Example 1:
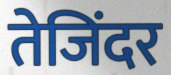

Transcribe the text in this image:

तेजिंदर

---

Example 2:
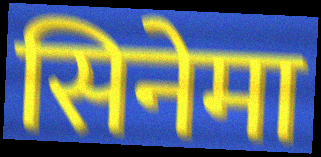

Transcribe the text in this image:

सिनेमा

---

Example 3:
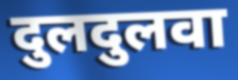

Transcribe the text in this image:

दुलदुलवा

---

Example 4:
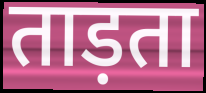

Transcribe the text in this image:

ताड़ता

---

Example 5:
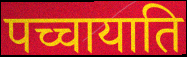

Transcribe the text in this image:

पच्चायाति